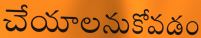
చేయాలనుకోవడం